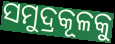
ସମୁଦ୍ରକୂଳକୁ